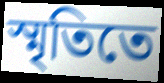
স্মৃতিতে